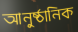
আনুষ্ঠানিক